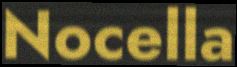
Nocella